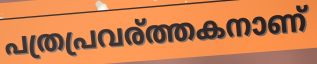
പത്രപ്രവര്ത്തകനാണ്